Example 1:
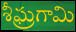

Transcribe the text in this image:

శీఘ్రగామి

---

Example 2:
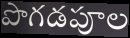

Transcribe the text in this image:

పొగడపూల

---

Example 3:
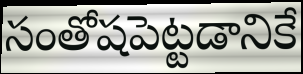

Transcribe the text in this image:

సంతోషపెట్టడానికే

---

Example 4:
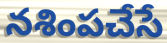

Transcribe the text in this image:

నశింపచేసే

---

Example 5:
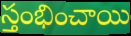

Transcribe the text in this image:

స్తంభించాయి